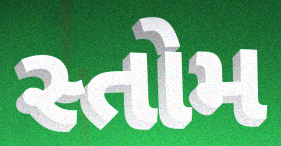
સ્તોમ